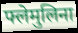
फ्लेमुलिना